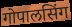
गोपालसिंग